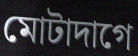
মোটাদাগে